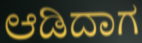
ಆಡಿದಾಗ